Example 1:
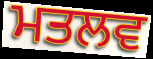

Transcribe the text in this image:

ਮਤਲਵ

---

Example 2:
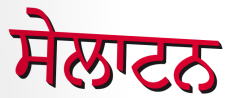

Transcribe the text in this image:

ਸੇਲਾਟਨ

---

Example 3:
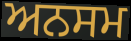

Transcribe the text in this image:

ਅਨਸਮ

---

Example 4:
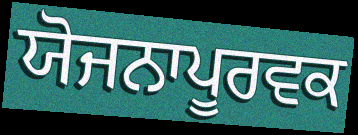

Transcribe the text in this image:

ਯੋਜਨਾਪੂਰਵਕ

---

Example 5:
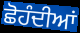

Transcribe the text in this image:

ਛੋਹੰਦੀਆਂ